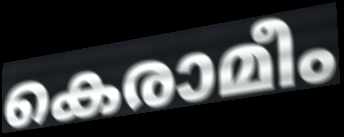
കെരാമീം